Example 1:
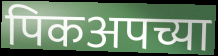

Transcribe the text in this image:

पिकअपच्या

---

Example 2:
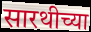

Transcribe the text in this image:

सारथीच्या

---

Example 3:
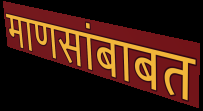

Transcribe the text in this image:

माणसांबाबत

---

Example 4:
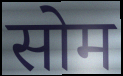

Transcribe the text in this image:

सोम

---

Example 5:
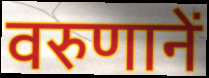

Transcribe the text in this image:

वरुणानें